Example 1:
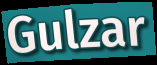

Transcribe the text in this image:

Gulzar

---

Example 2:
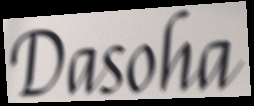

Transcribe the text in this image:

Dasoha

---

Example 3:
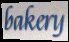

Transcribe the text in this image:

bakery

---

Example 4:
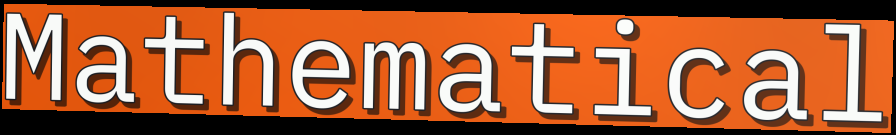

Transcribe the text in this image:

Mathematical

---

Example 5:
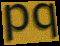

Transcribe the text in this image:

pq